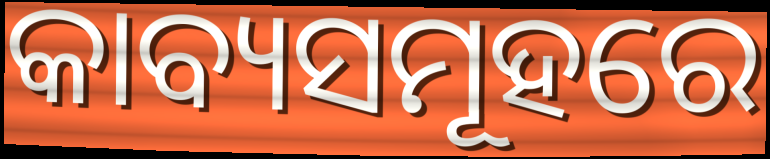
କାବ୍ୟସମୂହରେ